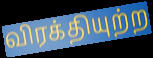
விரக்தியுற்ற